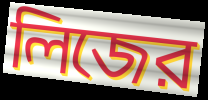
লিজের